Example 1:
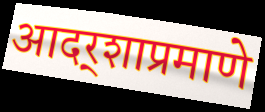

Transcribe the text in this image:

आदर्शाप्रमाणे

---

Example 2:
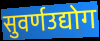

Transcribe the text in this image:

सुवर्णउद्योग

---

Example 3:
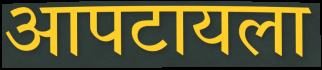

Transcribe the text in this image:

आपटायला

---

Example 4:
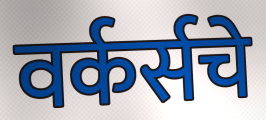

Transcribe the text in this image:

वर्कर्सचे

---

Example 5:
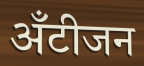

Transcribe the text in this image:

अँटीजन